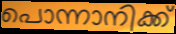
പൊന്നാനിക്ക്